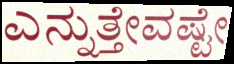
ಎನ್ನುತ್ತೇವಷ್ಟೇ